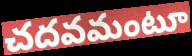
చదవమంటూ